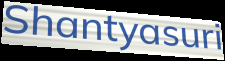
Shantyasuri